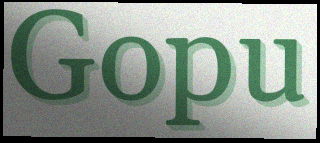
Gopu